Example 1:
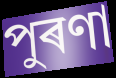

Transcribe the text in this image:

পুৰণা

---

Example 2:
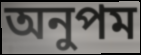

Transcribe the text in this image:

অনুপম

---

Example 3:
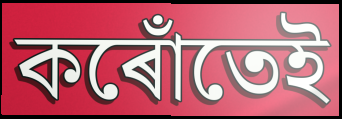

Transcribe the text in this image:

কৰোঁতেই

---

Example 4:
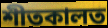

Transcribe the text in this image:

শীতকালত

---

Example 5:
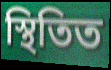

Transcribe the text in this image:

স্থিতিত